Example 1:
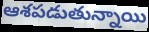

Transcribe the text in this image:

ఆశపడుతున్నాయి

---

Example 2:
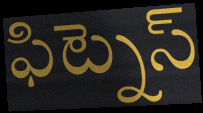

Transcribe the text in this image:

ఫిట్నెస్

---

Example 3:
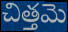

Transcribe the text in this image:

చిత్తమె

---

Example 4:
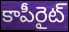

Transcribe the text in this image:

కాపీరైట్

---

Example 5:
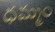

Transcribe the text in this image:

ధమ్మం